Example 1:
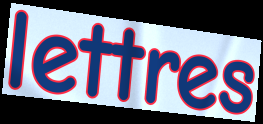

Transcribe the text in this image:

lettres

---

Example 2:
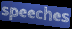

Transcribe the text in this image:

speeches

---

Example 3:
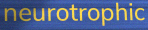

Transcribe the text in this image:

neurotrophic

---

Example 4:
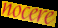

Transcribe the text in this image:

nocere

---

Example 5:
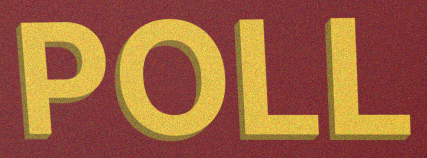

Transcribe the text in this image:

POLL